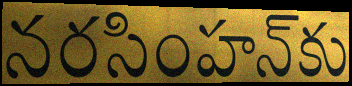
నరసింహన్‌కు